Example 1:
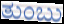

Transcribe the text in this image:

ತುಂಬು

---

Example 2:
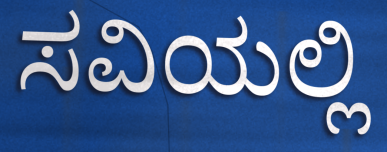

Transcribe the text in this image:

ಸವಿಯಲ್ಲಿ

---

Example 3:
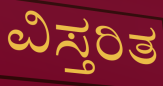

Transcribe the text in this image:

ವಿಸ್ತರಿತ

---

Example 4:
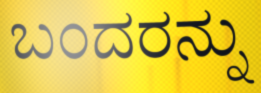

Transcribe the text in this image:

ಬಂದರನ್ನು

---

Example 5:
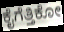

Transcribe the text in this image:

ಕೈಗೆತ್ತಿಕೋ